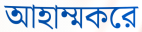
আহাম্মকরে